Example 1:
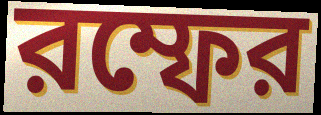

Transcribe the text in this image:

রম্ফের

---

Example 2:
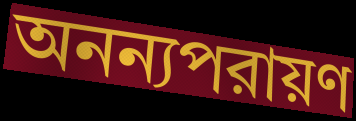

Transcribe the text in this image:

অনন্যপরায়ণ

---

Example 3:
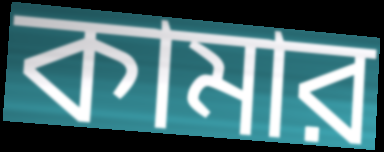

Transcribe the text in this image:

কামার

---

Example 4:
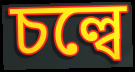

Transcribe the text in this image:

চল্বে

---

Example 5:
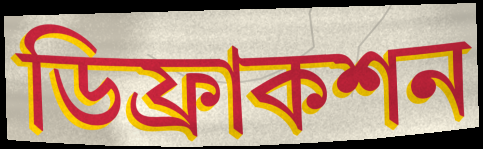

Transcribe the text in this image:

ডিফ্রাকশন